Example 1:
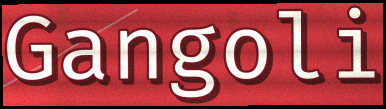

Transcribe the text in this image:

Gangoli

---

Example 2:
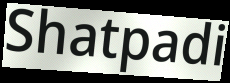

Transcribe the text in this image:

Shatpadi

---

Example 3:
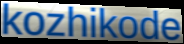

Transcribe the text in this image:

kozhikode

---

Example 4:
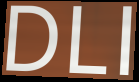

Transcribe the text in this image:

DLI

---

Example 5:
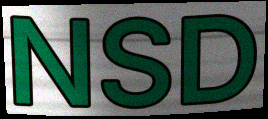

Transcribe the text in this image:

NSD